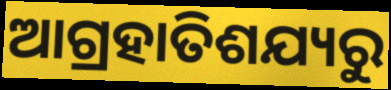
ଆଗ୍ରହାତିଶଯ୍ୟରୁ